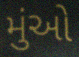
મુંઓ